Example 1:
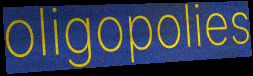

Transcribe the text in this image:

oligopolies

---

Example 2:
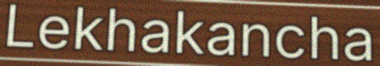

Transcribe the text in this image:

Lekhakancha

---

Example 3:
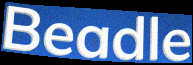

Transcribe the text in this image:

Beadle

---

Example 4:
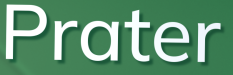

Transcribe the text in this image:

Prater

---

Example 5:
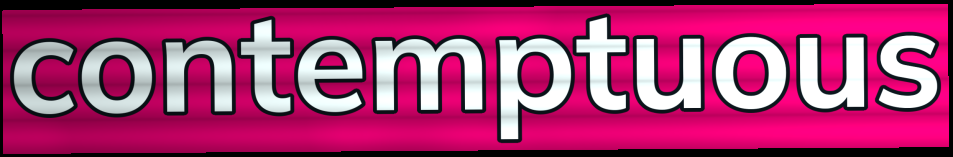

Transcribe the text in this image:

contemptuous